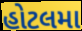
હોટલમા